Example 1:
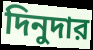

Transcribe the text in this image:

দিনুদার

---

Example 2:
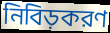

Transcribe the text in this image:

নিবিড়করণ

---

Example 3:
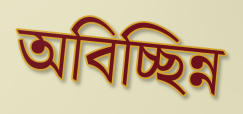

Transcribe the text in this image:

অবিচ্ছিন্ন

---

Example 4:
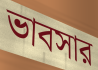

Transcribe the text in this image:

ভাবসার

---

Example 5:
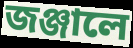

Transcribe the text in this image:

জঞ্জালে